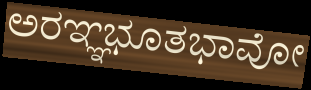
ಅರಞ್ಞಭೂತಭಾವೋ